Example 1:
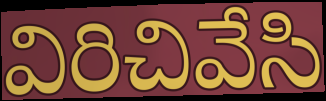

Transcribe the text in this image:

విరిచివేసి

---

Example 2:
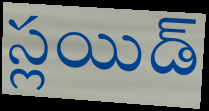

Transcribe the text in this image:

స్లయిడ్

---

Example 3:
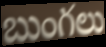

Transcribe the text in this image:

బుంగలు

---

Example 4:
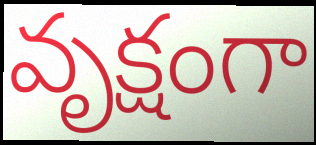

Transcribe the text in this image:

వృక్షంగా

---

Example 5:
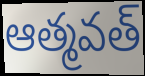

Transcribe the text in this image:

ఆత్మవత్